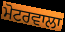
ਮੋਟਰਵਾਲਾ